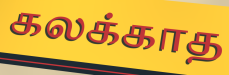
கலக்காத